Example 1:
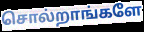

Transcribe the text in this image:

சொல்றாங்களே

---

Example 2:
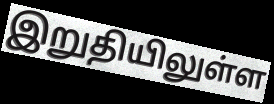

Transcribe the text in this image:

இறுதியிலுள்ள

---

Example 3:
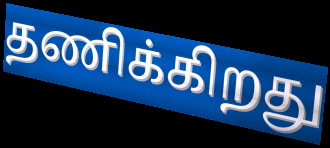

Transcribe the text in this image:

தணிக்கிறது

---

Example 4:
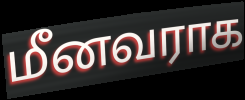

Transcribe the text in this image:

மீனவராக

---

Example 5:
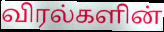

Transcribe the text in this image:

விரல்களின்